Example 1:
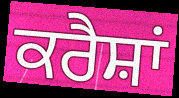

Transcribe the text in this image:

ਕਰੈਸ਼ਾਂ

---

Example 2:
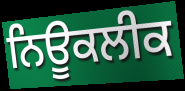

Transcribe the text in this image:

ਨਿਊਕਲੀਕ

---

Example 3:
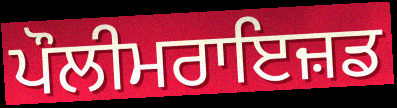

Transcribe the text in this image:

ਪੌਲੀਮਰਾਇਜ਼ਡ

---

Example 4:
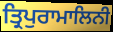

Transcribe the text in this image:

ਤ੍ਰਿਪੁਰਾਮਾਲਿਨੀ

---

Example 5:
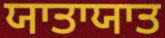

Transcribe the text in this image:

ਯਾਤਾਯਾਤ